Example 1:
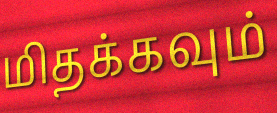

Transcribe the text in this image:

மிதக்கவும்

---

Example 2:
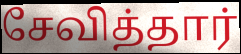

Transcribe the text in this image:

சேவித்தார்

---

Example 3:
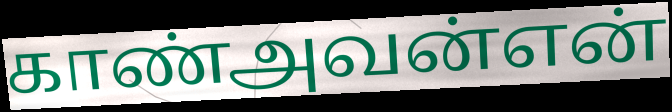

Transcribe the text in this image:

காண்அவன்என்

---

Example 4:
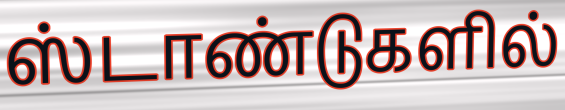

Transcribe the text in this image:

ஸ்டாண்டுகளில்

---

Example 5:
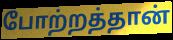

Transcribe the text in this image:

போற்றத்தான்